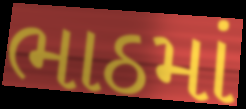
ભાઠમાં